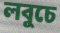
লবুচে